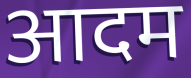
आदम